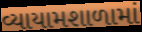
વ્યાયામશાળામાં